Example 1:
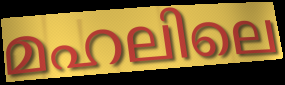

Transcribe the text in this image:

മഹലിലെ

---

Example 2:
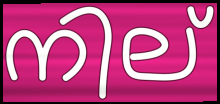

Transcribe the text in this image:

നില്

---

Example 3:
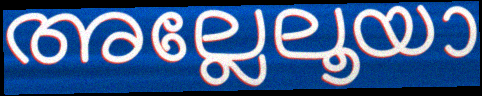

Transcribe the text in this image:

അല്ലേലൂയാ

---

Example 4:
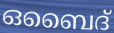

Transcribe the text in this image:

ഒബൈദ്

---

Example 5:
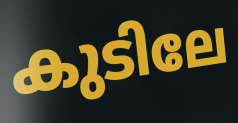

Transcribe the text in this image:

കുടിലേ